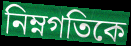
নিম্নগতিকে